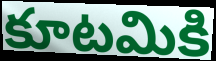
కూటమికి